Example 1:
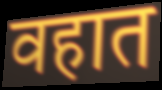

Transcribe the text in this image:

वहात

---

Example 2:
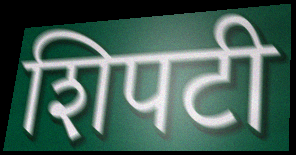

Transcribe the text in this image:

शिपटी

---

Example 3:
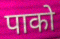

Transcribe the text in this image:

पाको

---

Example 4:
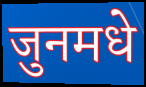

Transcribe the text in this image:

जुनमधे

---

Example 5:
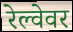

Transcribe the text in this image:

रेल्वेवर